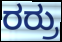
ರರ್ರು